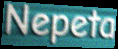
Nepeta